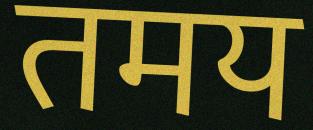
तमय